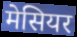
मेसियर